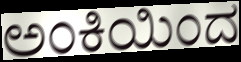
ಅಂಕಿಯಿಂದ